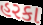
હરકા